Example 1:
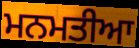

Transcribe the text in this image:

ਮਨਮਤੀਆ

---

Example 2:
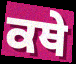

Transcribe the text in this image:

ਕਥੇ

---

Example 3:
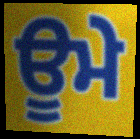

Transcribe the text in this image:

ਊਮੇ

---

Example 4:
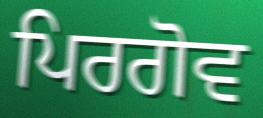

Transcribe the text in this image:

ਪਿਰਗੋਵ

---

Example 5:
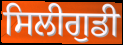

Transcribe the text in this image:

ਸਿਲੀਗੁਡੀ